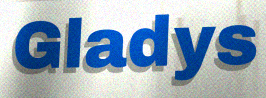
Gladys